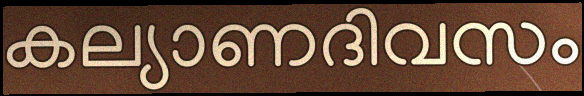
കല്യാണദിവസം